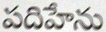
పదిహేను